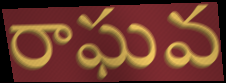
రాఘవ